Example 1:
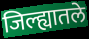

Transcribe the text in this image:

जिल्ह्यातले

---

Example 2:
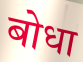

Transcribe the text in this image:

बोधा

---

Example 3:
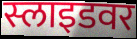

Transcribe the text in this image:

स्‍लाइडवर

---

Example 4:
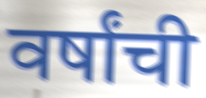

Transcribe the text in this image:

वर्षांची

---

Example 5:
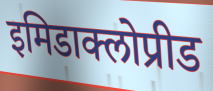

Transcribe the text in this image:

इमिडाक्लोप्रीड